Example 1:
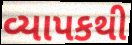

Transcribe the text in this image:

વ્યાપકથી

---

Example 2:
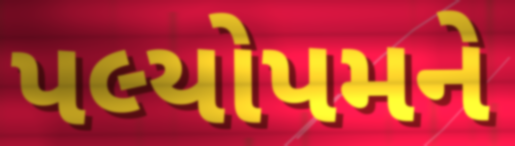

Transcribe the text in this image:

પલ્યોપમને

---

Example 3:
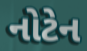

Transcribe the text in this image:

નોટેન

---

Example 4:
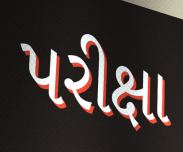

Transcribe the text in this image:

પરીક્ષા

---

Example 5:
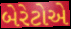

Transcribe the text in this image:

બેરેટોએ